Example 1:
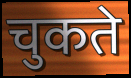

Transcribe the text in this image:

चुकते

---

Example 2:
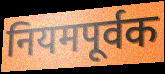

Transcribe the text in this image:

नियमपूर्वक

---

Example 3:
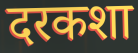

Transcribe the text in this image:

दरकशा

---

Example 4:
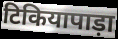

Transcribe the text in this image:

टिकियापाड़ा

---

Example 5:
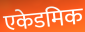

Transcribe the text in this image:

एकेडमिक